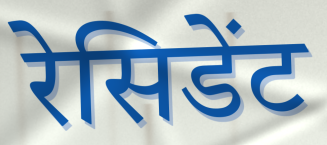
रेसिडेंट